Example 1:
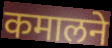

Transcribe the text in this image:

कमालने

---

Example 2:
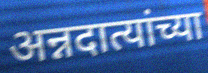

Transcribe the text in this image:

अन्नदात्यांच्या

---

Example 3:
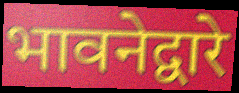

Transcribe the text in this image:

भावनेद्वारे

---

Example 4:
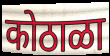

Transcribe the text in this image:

कोठाळा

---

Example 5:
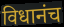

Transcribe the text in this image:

विधानंच